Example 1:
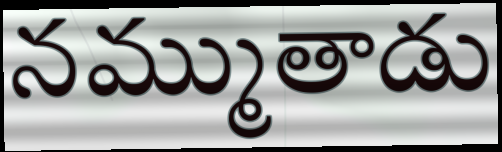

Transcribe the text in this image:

నమ్ముతాడు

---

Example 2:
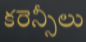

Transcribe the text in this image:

కరెన్సీలు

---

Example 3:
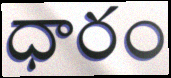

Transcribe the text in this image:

ధారం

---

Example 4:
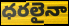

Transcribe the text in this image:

ధరలైనా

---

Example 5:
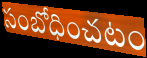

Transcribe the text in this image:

సంబోధించటం